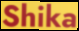
Shika